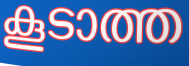
കൂടാത്ത